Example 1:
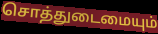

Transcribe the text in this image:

சொத்துடைமையும்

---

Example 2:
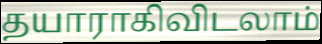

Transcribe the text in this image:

தயாராகிவிடலாம்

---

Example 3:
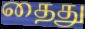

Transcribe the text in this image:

தைது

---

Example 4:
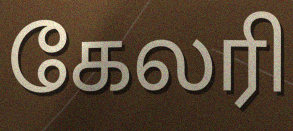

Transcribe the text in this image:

கேலரி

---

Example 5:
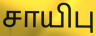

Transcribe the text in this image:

சாயிபு